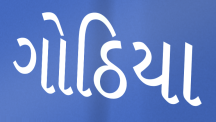
ગોઠિયા